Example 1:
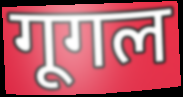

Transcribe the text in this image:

गूगल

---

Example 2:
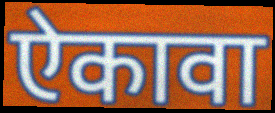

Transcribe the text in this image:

ऐकावा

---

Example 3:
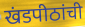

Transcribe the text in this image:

खंडपीठांची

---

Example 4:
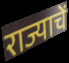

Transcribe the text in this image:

राज्याचें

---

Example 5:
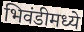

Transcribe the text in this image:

भिवंडीमध्ये